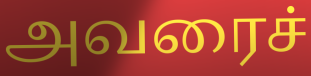
அவரைச்